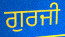
ਗੁਰਜੀ